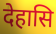
देहासि